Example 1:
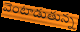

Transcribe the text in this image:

వెంటాడుతున్న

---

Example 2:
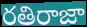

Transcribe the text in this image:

రతిరాజా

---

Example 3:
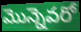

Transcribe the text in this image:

మొన్నెవరో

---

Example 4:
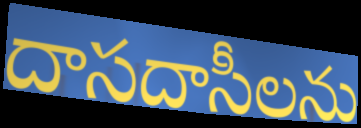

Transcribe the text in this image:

దాసదాసీలను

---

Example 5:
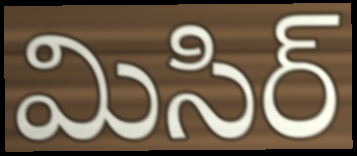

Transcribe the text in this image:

మిసిర్